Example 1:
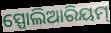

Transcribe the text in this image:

ସ୍ପୋଲିଆରିୟମ୍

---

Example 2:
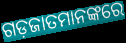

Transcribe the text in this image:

ଗଡ଼ଜାତମାନଙ୍କରେ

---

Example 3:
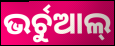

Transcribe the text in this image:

ଭର୍ଚୁଆଲ୍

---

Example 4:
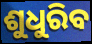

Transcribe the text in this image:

ଶୁଧୁରିବ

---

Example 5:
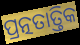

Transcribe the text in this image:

ପ୍ରତ୍ନତାତ୍ତିକ